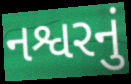
નશ્વરનું